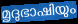
മൃദുഭാഷിയും